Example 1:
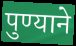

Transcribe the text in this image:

पुण्याने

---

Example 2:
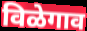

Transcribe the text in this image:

विळेगाव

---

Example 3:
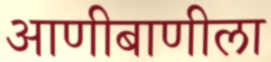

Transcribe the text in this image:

आणीबाणीला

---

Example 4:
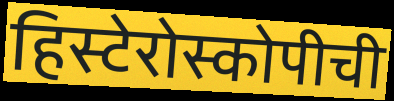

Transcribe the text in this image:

हिस्टेरोस्कोपीची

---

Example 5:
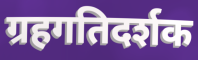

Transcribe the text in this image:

ग्रहगतिदर्शक